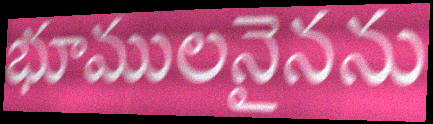
భూములనైనను